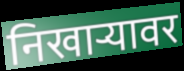
निखार्‍यावर